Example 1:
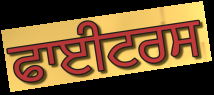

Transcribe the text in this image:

ਫਾਈਟਰਸ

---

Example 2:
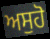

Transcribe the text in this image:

ਅਸੁਹੋ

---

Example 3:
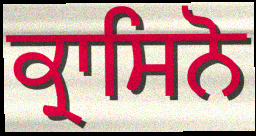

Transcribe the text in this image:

ਕ੍ਰਾਸਿਨੋ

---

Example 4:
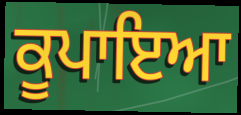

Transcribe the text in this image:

ਕੂਪਾਇਆ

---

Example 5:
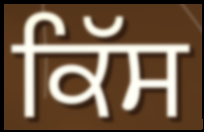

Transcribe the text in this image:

ਕਿੱਸ